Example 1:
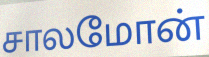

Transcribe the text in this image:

சாலமோன்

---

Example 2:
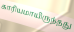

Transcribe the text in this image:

காரியமாயிருந்தது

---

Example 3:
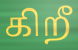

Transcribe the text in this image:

கிறீ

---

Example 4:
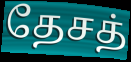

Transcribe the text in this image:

தேசத்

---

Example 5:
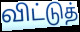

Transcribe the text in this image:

விட்டுத்